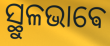
ସ୍ଥୁଳଭାଵେ